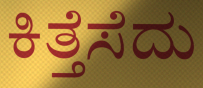
ಕಿತ್ತೆಸೆದು